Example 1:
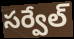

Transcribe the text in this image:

సర్వేల్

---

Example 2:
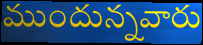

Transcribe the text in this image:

ముందున్నవారు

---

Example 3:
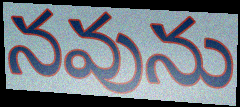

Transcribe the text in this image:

నవును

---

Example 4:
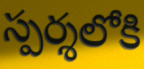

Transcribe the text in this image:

స్పర్శలోకి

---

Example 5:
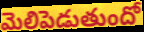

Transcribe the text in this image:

మెలిపెడుతుందో